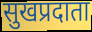
सुखप्रदाता